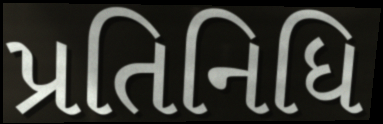
પ્રતિનિધિ